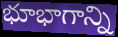
భూభాగాన్ని